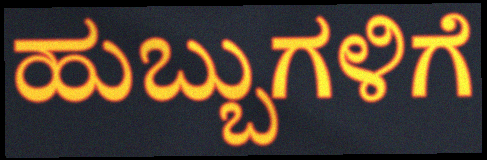
ಹುಬ್ಬುಗಳಿಗೆ